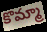
కొమ్మా